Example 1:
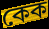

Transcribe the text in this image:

কেক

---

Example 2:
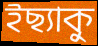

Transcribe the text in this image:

ইছ্যাকু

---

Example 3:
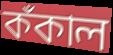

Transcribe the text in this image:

কঁকাল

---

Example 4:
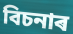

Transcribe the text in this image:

বিচনাৰ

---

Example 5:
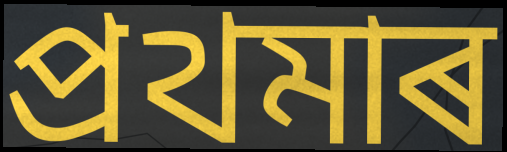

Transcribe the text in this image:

প্ৰথমাৰ